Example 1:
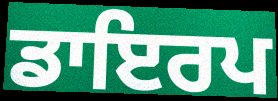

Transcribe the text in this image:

ਡਾਇਰਪ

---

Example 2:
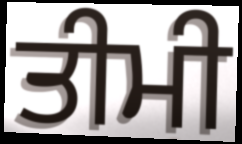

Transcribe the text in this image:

ਤੀਮੀ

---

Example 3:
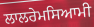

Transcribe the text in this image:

ਲਾਲਰੇਮਸਿਆਮੀ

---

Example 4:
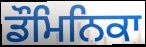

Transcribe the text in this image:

ਡੌਮਿਨਿਕਾ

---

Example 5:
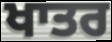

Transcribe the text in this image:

ਖਾਤਰ